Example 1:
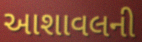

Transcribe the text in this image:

આશાવલની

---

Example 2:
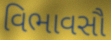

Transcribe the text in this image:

વિભાવસૌ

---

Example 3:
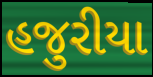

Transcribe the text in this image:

હજુરીયા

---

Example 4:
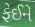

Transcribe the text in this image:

ફેઈને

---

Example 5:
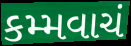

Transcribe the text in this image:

કમ્મવાચં